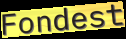
Fondest